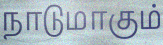
நாடுமாகும்